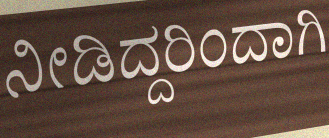
ನೀಡಿದ್ದರಿಂದಾಗಿ